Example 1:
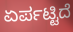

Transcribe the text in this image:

ಏರ್ಪಟ್ಟಿದೆ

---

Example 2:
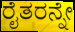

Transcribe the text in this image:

ರೈತರನ್ನೇ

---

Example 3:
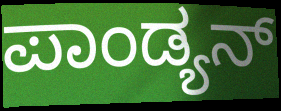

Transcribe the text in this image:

ಪಾಂಡ್ಯನ್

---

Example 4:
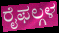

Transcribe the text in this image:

ರೈಫಲ್ಗಳ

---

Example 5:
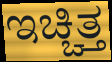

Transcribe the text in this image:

ಇಚ್ಚಿತ್ತ